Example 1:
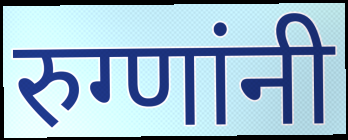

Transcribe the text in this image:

रुग्णांनी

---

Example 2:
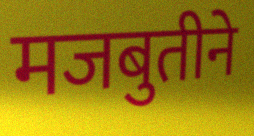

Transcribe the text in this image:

मजबुतीने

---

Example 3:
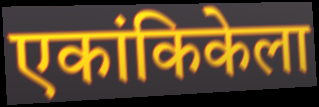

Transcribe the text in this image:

एकांकिकेला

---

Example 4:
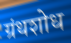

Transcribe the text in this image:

ग्रंथशोध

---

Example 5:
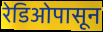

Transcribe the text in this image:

रेडिओपासून